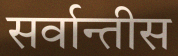
सर्वान्तीस